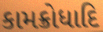
કામક્રોધાદિ